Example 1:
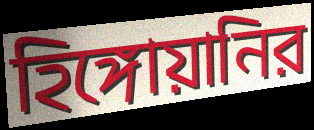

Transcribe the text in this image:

হিঙ্গোয়ানির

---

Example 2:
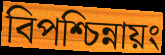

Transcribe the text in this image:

বিপশ্চিন্নায়ং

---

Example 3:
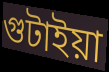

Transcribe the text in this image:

গুটাইয়া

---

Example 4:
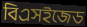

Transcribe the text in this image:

বিএসইজেড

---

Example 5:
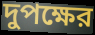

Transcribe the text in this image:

দুপক্ষের